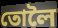
তোলৈ